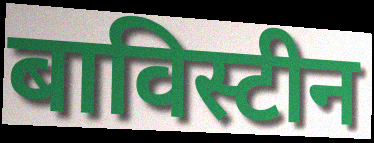
बाविस्टीन